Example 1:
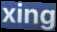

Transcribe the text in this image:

xing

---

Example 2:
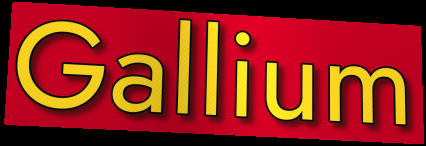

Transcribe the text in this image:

Gallium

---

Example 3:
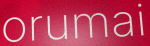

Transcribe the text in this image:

orumai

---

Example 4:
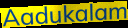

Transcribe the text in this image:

Aadukalam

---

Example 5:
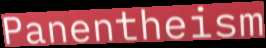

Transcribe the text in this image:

Panentheism